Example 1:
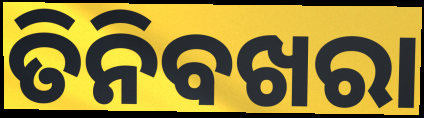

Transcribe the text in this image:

ତିନିବଖରା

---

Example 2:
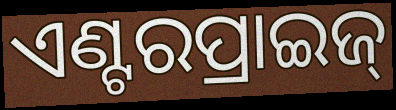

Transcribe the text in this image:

ଏଣ୍ଟରପ୍ରାଇଜ୍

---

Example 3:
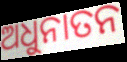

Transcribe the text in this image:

ଅଧୁନାତନ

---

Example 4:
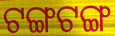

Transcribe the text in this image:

ଟଙ୍ଗଟଙ୍ଗ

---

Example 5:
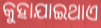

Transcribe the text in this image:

କୁହାଯାଇଥାଏ